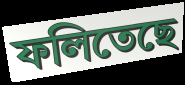
ফলিতেছে